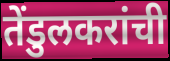
तेंडुलकरांची